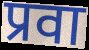
प्रवा